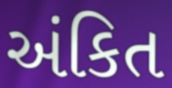
અંકિત